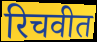
रिचवीत